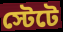
স্টেটে